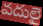
వదులై